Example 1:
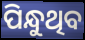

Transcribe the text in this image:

ପିନ୍ଧୁଥିବ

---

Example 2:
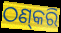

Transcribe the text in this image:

ଠଣ୍‌କରି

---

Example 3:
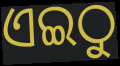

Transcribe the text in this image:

ଏଇଠୁ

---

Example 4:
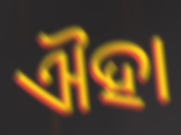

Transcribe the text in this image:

ଐହା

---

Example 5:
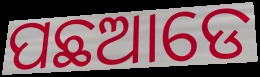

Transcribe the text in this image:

ପଛଆଡେ